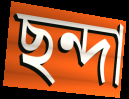
ছন্দা